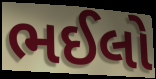
ભઈલો